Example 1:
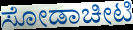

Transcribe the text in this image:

ಸೋಡಾಚೀಟಿ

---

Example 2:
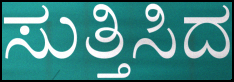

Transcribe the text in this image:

ಸುತ್ತಿಸಿದ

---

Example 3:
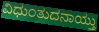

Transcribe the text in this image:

ವಿಧುಂತುದನಾಯ್ತು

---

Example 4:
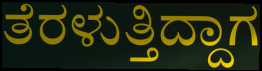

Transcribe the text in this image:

ತೆರಳುತ್ತಿದ್ದಾಗ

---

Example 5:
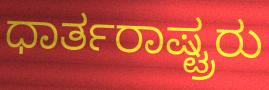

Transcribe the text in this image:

ಧಾರ್ತರಾಷ್ಟ್ರರು